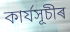
কাৰ্যসূচীৰ